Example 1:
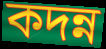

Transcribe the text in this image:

কদন্ন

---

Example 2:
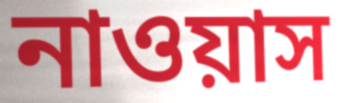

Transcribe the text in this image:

নাওয়াস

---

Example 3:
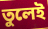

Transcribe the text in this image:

তুলেই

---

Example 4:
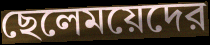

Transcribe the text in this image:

ছেলেময়েদের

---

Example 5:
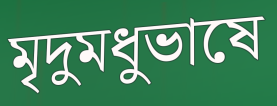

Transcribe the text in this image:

মৃদুমধুভাষে